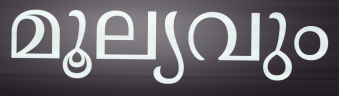
മൂല്യവും